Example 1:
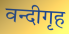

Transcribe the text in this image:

वन्दीगृह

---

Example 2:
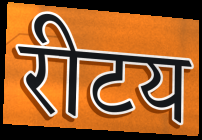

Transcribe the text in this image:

रीटय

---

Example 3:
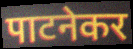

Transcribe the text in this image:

पाटनेकर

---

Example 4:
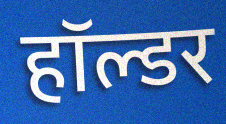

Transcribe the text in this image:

हॉल्डर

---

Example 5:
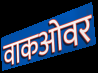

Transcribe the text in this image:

वाकओवर